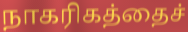
நாகரிகத்தைச்